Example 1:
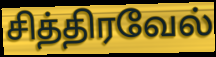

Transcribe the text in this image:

சித்திரவேல்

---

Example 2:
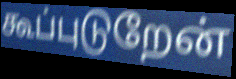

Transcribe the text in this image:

கூப்புடுறேன்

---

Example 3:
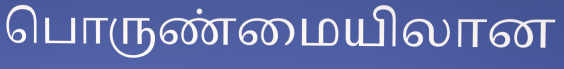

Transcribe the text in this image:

பொருண்மையிலான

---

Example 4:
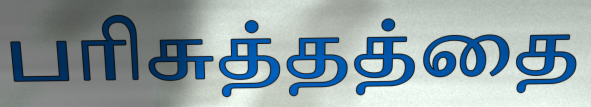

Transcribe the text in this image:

பரிசுத்தத்தை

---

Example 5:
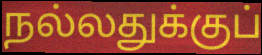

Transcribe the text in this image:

நல்லதுக்குப்